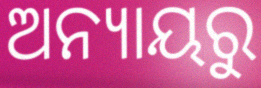
ଅନ୍ୟାୟରୁ